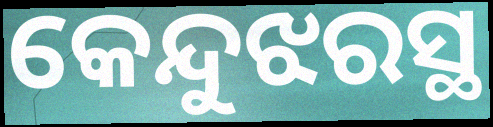
କେନ୍ଦୁଝରସ୍ଥ